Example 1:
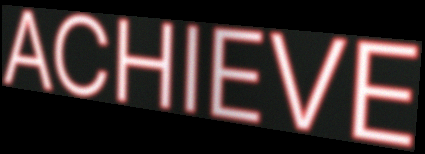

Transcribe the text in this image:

ACHIEVE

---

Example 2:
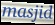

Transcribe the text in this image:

masjid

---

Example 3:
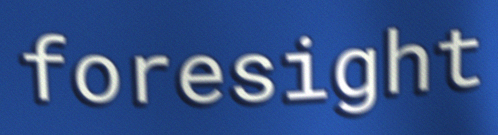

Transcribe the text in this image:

foresight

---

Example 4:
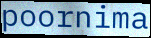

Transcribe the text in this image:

poornima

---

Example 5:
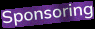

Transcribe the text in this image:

Sponsoring